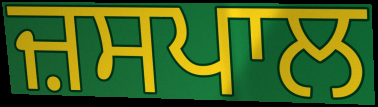
ਜ਼ਸਪਾਲ